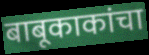
बाबूकाकांचा